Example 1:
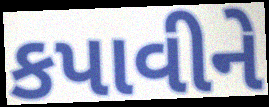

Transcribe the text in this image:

કપાવીને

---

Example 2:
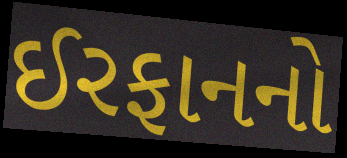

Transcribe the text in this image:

ઈરફાનનો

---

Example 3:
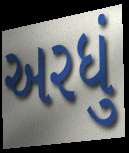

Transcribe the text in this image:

અરધું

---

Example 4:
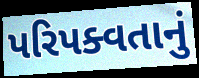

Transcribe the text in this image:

પરિપક્વતાનું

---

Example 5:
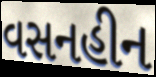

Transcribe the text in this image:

વસનહીન